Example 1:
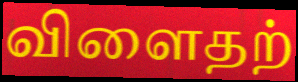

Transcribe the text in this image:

விளைதற்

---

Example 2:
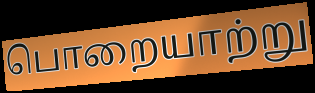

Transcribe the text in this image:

பொறையாற்று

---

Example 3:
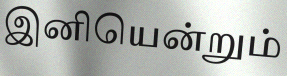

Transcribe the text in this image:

இனியென்றும்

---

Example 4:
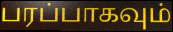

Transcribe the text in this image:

பரப்பாகவும்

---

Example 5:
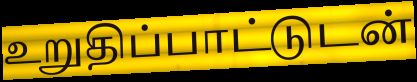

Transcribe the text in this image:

உறுதிப்பாட்டுடன்